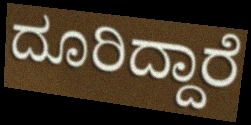
ದೂರಿದ್ದಾರೆ